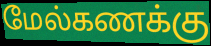
மேல்கணக்கு